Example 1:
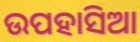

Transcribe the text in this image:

ଉପହାସିଆ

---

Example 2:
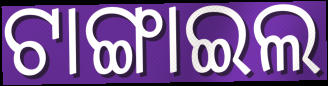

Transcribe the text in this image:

ଟାଙ୍ଗାଇଲ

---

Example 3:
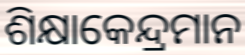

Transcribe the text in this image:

ଶିକ୍ଷାକେନ୍ଦ୍ରମାନ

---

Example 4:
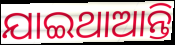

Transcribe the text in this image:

ଯାଇଥାଆନ୍ତି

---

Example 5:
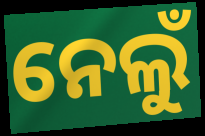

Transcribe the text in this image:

ନେଲୁଁ